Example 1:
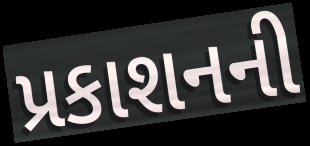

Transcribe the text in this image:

પ્રકાશનની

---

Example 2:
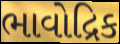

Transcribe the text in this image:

ભાવોદ્રિક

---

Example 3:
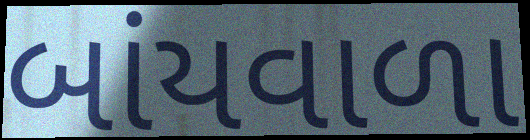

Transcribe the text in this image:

બાંયવાળા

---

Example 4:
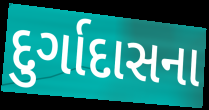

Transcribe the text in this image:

દુર્ગાદાસના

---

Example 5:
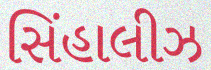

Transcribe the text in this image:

સિંહાલીઝ